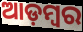
ଆଡ଼ମ୍ୱର